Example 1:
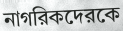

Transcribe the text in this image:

নাগরিকদেরকে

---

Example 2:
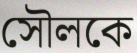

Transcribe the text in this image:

সৌলকে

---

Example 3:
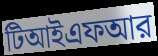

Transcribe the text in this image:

টিআইএফআর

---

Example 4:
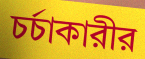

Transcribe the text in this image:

চর্চাকারীর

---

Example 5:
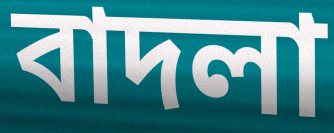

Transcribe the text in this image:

বাদলা